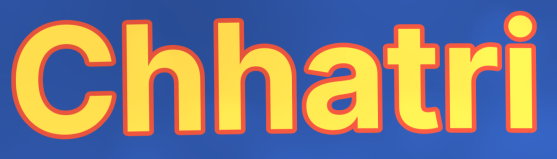
Chhatri